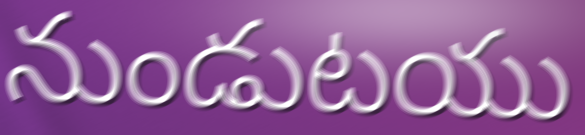
నుండుటయు